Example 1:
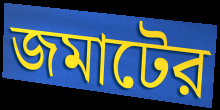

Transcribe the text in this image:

জমাটের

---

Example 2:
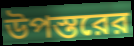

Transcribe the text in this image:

উপস্তরের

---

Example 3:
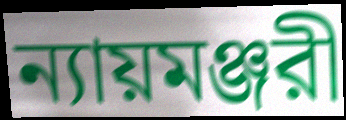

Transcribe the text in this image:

ন্যায়মঞ্জরী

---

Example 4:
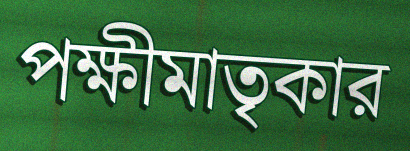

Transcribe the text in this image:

পক্ষীমাতৃকার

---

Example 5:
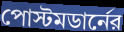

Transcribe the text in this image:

পোস্টমডার্নের